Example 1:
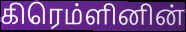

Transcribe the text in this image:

கிரெம்ளினின்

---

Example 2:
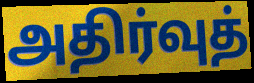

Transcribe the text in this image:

அதிர்வுத்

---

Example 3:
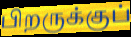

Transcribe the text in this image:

பிறருக்குப்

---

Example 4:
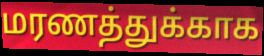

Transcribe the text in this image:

மரணத்துக்காக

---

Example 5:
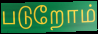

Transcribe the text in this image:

படுறோம்